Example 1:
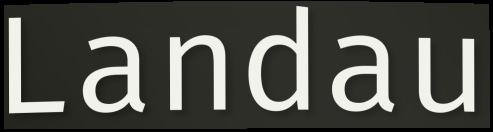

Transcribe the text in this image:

Landau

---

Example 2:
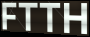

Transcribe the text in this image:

FTTH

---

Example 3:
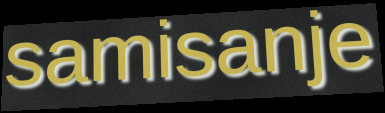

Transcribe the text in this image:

samisanje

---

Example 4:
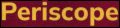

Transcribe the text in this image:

Periscope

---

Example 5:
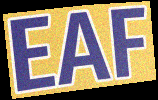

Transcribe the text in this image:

EAF